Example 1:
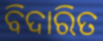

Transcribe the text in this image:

ବିଦାରିତ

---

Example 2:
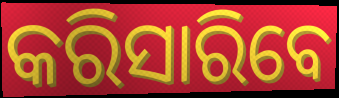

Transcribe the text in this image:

କରିସାରିବେ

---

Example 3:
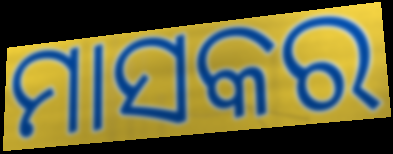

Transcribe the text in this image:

ମାସକର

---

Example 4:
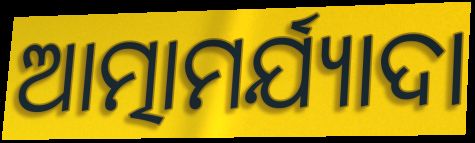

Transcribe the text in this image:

ଆତ୍ମାମର୍ଯ୍ୟାଦା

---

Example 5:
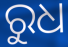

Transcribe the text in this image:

ରୁଧ